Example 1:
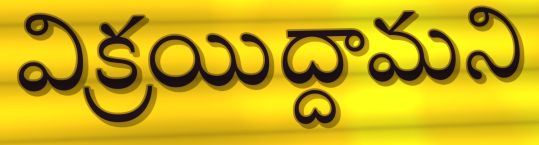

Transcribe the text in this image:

విక్రయిద్దామని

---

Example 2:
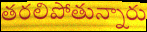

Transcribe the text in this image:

తరలిపోతున్నారు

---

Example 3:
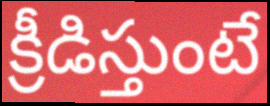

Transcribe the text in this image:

క్రీడిస్తుంటే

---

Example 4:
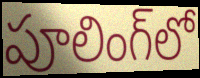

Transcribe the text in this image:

పూలింగ్‌లో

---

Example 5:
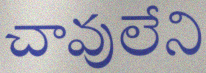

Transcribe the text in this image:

చావులేని